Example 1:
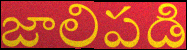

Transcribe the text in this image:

జాలిపడి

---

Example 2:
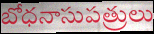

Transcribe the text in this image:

బోధనాసుపత్రులు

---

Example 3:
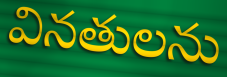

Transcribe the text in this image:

వినతులను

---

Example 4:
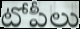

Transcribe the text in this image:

టోపీలు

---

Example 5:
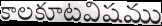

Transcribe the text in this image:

కాలకూటవిషము